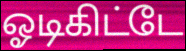
ஓடிகிட்டே